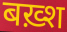
बख़्श